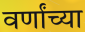
वर्णांच्या